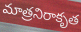
మాత్రనిరాకృత